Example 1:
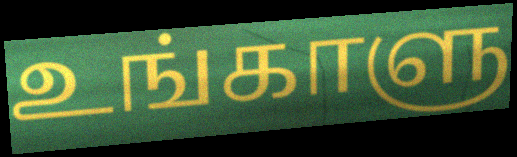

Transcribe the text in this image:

உங்காளு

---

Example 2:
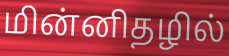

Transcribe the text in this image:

மின்னிதழில்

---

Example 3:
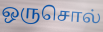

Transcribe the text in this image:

ஒருசொல்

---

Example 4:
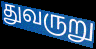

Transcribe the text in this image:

துவருறு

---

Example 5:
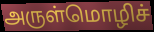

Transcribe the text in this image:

அருள்மொழிச்